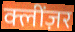
क्लींज़र